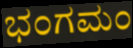
ಭಂಗಮಂ